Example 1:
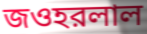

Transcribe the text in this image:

জওহরলাল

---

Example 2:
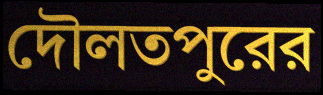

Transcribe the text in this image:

দৌলতপুরের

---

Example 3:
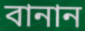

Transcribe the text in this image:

বানান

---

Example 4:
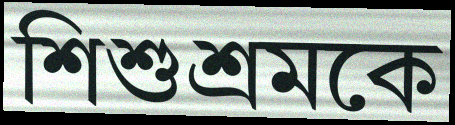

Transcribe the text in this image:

শিশুশ্রমকে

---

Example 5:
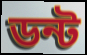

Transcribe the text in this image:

ডন্ট